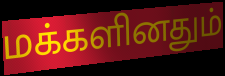
மக்களினதும்